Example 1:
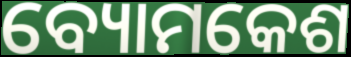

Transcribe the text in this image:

ବ୍ୟୋମକେଶ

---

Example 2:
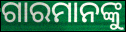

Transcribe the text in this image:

ଗାରମାନଙ୍କୁ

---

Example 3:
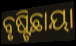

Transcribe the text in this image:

ବୃଷ୍ଟିଛାୟା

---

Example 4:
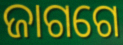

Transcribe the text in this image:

ଜାଗଗେ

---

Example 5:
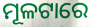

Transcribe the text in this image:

ମୂଳଟାରେ